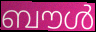
ബൗൾ